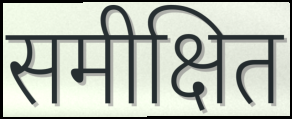
समीक्षित